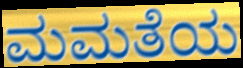
ಮಮತೆಯ